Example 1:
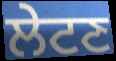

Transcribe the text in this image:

ਲੇਟਣ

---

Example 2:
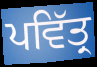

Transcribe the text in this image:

ਪਵਿੱਤ੍ਰ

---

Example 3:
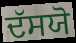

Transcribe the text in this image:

ਦੱਸਯੋ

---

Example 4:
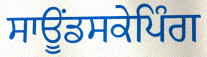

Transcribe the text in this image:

ਸਾਊਂਡਸਕੇਪਿੰਗ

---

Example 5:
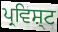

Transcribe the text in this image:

ਪ੍ਰਵਿਸ਼੍ਟ